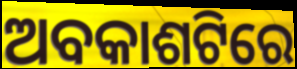
ଅବକାଶଟିରେ